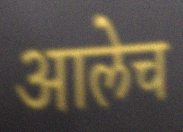
आलेच